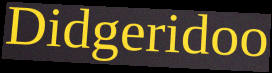
Didgeridoo